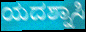
ಯದಶ್ನಾಸಿ